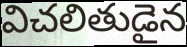
విచలితుడైన